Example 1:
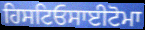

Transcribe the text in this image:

ਹਿਸਟਿਓਸਾਈਟੋਮਾ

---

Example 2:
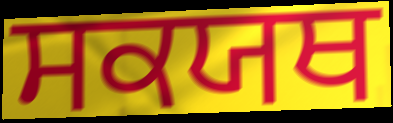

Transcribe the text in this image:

ਸਕਯਥ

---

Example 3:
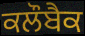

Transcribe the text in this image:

ਕਲੌਬੈਕ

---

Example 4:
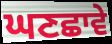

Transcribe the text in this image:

ਘਣਛਾਵੇ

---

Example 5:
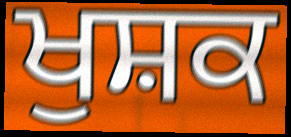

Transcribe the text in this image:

ਖੁਸ਼ਕ